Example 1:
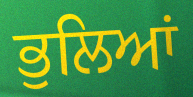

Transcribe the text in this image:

ਭੁਲਿਆਂ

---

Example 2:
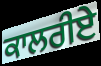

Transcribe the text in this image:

ਕਾਲਰੀਏ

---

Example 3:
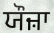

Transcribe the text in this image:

ਯੌਜ਼ਾ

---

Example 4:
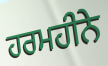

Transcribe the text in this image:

ਹਰਮਹੀਨੇ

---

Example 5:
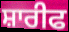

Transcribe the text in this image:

ਸ਼ਾਰੀਫ